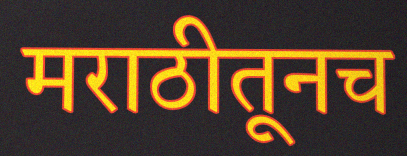
मराठीतूनच